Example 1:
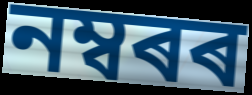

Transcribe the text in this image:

নম্বৰৰ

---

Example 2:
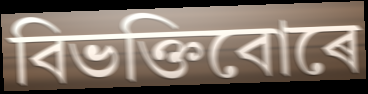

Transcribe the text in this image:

বিভক্তিবোৰে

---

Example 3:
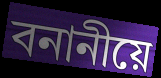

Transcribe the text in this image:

বনানীয়ে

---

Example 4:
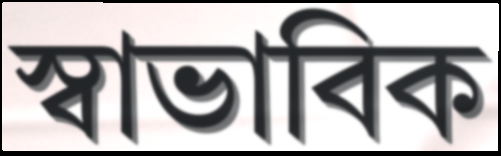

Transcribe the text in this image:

স্বাভাবিক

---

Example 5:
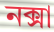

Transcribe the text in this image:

নক্সা